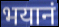
भयानं